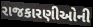
રાજકારણીઓની